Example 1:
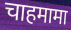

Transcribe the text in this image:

चाहमामा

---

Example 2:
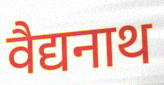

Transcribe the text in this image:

वैद्यनाथ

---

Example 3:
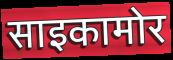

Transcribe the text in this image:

साइकामोर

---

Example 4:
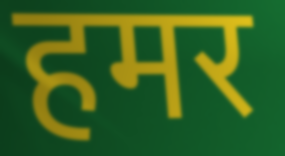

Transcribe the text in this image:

हमर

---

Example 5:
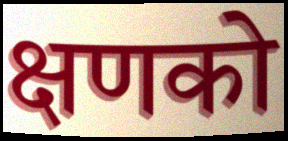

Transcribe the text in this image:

क्षणको